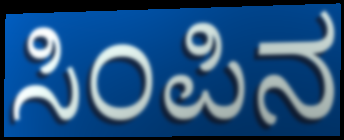
ಸಿಂಪಿನ